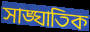
সাঙ্ঘাতিক